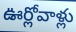
ఊర్లోవాళ్లు